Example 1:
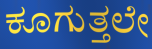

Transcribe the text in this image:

ಕೂಗುತ್ತಲೇ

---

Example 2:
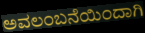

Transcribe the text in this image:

ಅವಲಂಬನೆಯಿಂದಾಗಿ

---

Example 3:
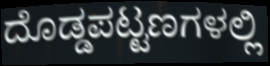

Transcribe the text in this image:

ದೊಡ್ಡಪಟ್ಟಣಗಳಲ್ಲಿ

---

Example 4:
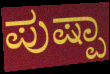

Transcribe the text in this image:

ಪುಷ್ಪಾ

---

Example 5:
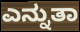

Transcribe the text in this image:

ಎನ್ನುತಾ